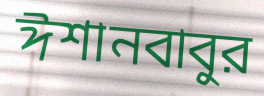
ঈশানবাবুর